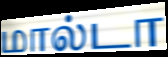
மால்டா